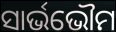
ସାର୍ଭଭୌମ